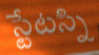
స్టేటస్ని